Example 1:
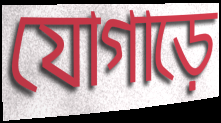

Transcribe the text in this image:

যোগাড়ে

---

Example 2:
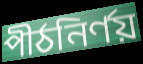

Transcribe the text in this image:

পীঠনির্ণয়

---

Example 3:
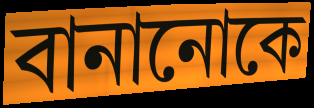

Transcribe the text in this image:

বানানোকে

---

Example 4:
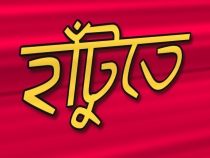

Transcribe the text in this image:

হাঁটুতে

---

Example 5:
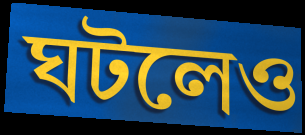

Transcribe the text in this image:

ঘটলেও